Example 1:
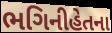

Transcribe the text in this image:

ભગિનીહેતના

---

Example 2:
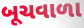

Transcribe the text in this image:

બૂચવાળા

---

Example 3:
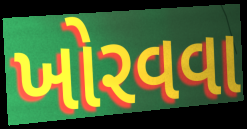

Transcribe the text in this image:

ખોરવવા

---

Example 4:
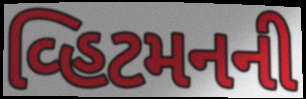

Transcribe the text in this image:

વ્હિટમનની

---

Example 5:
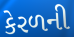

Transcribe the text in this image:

કેરળની